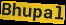
Bhupal